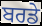
ਬਰਡੇ